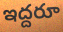
ఇద్దరూ